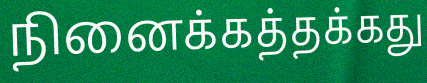
நினைக்கத்தக்கது